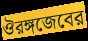
ঔরঙ্গজেবের